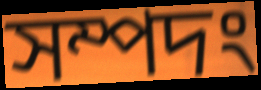
সম্পদং